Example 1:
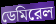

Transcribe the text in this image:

ডেমিরেল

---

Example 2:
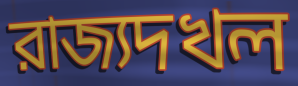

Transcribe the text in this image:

রাজ্যদখল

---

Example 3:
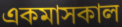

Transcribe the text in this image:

একমাসকাল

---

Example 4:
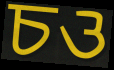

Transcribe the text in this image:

চও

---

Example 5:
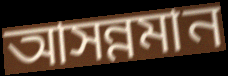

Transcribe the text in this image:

আসন্নমান